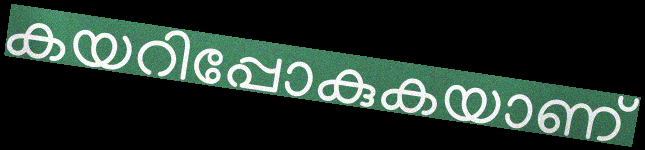
കയറിപ്പോകുകയാണ്